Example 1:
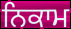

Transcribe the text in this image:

ਨਿਕਾਮ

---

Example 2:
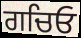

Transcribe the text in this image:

ਗਚਿਓ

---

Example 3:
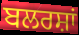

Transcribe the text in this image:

ਬਲਰਸ਼ਾਂ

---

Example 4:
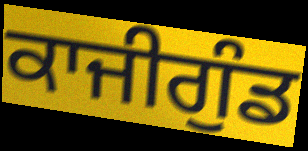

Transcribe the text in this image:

ਕਾਜੀਗੁੰਡ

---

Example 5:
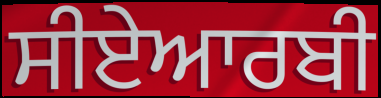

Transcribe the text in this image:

ਸੀਏਆਰਬੀ